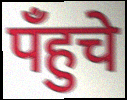
पँहुचे